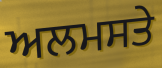
ਅਲਮਸਤੇ